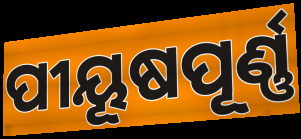
ପୀୟୂଷପୂର୍ଣ୍ଣ